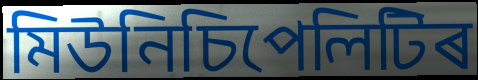
মিউনিচিপেলিটিৰ